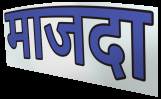
माजदा